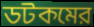
ডটকমের